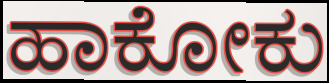
ಹಾಕೋಕು